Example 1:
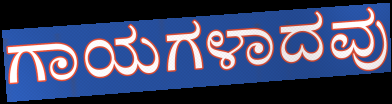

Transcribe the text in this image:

ಗಾಯಗಳಾದವು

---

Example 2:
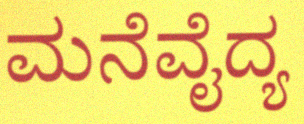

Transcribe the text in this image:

ಮನೆವೈದ್ಯ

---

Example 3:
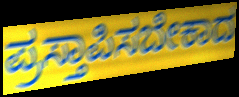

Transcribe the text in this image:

ಪ್ರಸ್ತಾಪಿಸಬೇಕಾದ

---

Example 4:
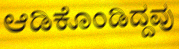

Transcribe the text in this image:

ಆಡಿಕೊಂಡಿದ್ದವು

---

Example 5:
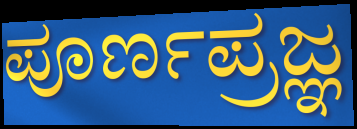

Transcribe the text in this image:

ಪೂರ್ಣಪ್ರಜ್ಞ